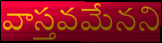
వాస్తవమేనని